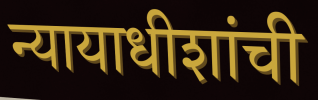
न्यायाधीशांची